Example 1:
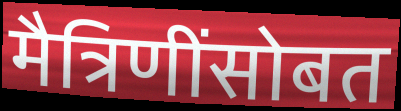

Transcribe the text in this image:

मैत्रिणींसोबत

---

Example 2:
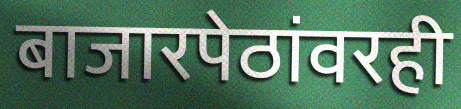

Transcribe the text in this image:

बाजारपेठांवरही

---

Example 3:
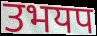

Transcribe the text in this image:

उभयप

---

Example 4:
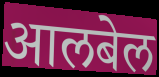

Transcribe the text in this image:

आलबेल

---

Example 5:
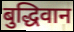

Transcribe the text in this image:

बुद्धिवान